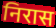
निरास